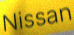
Nissan